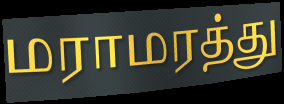
மராமரத்து